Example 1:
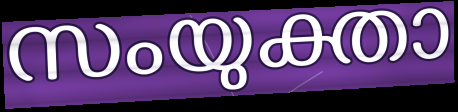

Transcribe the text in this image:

സംയുക്താ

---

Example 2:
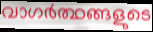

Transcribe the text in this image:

വാഗർത്ഥങ്ങളുടെ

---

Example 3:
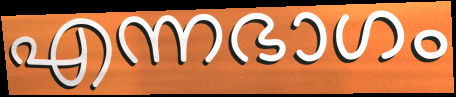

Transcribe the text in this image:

എന്നഭാഗം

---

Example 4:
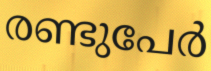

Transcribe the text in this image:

രണ്ടുപേർ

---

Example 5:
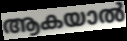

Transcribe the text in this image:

ആകയാൽ